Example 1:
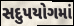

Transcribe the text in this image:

સદુપયોગમાં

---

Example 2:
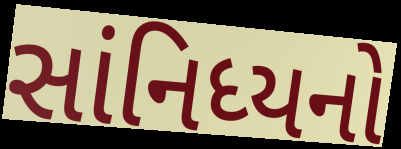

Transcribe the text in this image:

સાંનિધ્યનો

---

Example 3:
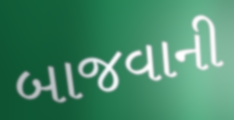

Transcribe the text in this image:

બાજવાની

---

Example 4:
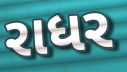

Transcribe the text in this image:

રાધર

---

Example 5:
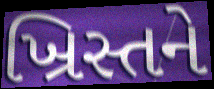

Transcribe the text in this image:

ખ્રિસ્તને